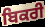
ਬਿਕਰੀ